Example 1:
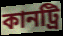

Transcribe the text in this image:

কানট্রি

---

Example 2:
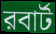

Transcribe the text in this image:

রবার্ট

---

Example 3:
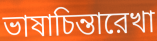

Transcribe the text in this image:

ভাষাচিন্তারেখা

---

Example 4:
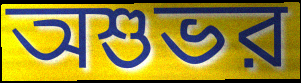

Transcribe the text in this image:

অশুভর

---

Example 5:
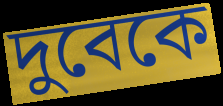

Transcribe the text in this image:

দুবেকে